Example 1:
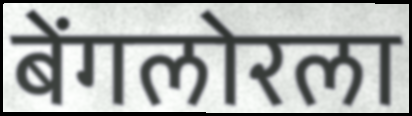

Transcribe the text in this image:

बेंगलोरला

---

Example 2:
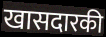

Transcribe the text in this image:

खासदारकी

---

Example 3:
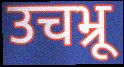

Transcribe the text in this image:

उचभ्रू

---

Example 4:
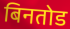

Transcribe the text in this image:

बिनतोड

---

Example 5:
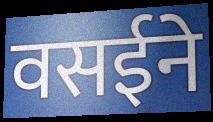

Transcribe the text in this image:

वसईने